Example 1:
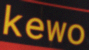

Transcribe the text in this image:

kewo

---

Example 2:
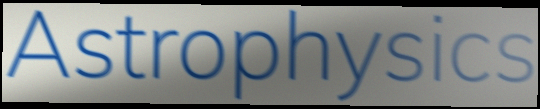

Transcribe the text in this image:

Astrophysics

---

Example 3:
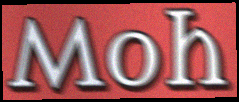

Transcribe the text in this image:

Moh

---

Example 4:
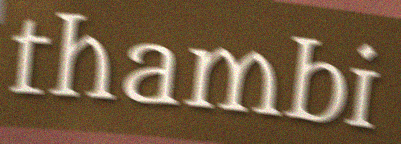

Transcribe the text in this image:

thambi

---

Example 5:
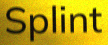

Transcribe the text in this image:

Splint